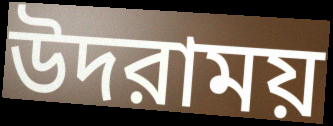
উদরাময়